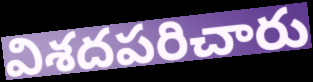
విశదపరిచారు